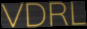
VDRL